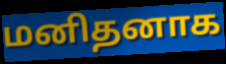
மனிதனாக